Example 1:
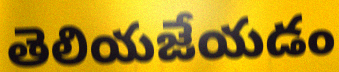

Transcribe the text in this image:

తెలియజేయడం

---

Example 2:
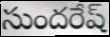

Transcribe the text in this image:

సుందరేష్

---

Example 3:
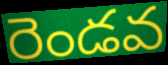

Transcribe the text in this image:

రెండవ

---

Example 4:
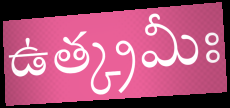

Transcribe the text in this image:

ఉత్క్రమీః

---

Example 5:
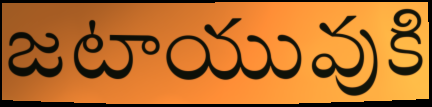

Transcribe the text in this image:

జటాయువుకి